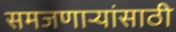
समजणाऱ्यांसाठी